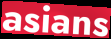
asians